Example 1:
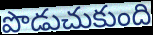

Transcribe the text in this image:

పొడుచుకుంది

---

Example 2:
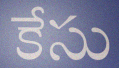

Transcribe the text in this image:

కేసు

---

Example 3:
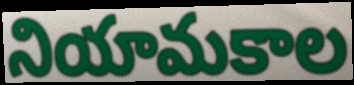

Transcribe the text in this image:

నియామకాల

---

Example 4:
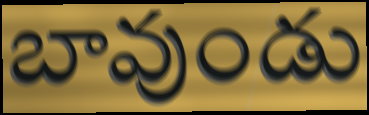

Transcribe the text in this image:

బావుండు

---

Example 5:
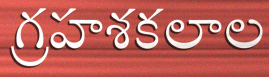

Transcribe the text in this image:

గ్రహశకలాల